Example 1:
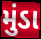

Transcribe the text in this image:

મુંડા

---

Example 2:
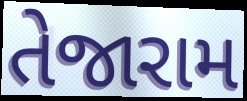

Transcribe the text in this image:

તેજારામ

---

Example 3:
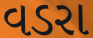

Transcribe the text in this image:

વડરા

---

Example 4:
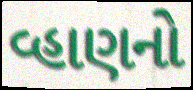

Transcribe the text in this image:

વ્હાણનો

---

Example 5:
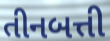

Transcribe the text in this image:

તીનબત્તી